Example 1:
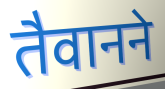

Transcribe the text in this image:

तैवानने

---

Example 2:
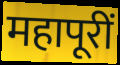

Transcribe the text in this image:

महापूरीं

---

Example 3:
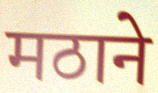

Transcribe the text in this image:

मठाने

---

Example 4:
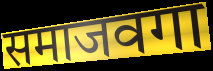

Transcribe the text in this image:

समाजवगा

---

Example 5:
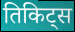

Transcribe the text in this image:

तिकिट्स